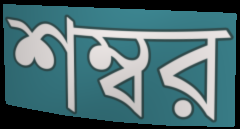
শম্বর